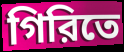
গিরিতে